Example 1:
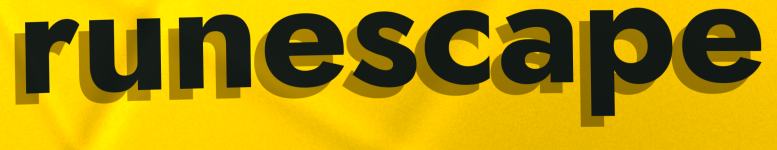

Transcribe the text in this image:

runescape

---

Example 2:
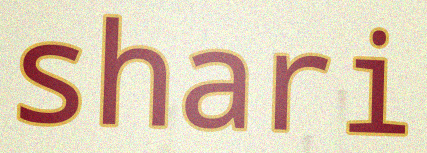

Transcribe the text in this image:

shari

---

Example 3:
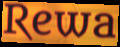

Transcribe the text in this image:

Rewa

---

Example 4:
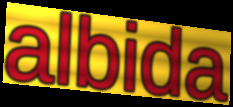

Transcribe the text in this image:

albida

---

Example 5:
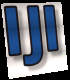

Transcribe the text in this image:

IJI